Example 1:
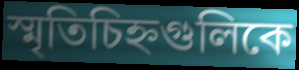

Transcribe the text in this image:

স্মৃতিচিহ্নগুলিকে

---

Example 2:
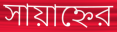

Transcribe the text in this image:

সায়াহ্নের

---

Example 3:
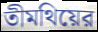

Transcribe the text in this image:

তীমথিয়ের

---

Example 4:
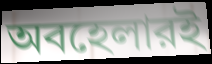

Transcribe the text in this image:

অবহেলারই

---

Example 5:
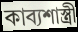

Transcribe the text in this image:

কাব্যশাস্ত্রী